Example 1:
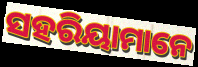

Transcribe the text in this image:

ସହରିୟାମାନେ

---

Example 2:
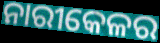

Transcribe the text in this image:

ନାରୀକେଳର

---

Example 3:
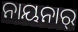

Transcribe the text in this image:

ନାୟନାର୍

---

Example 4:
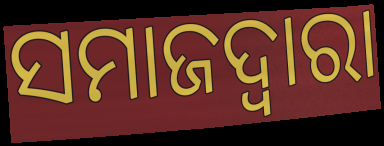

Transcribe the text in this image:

ସମାଜଦ୍ଵାରା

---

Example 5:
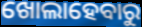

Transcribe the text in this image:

ଖୋଲାହେବାରୁ